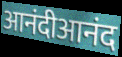
आनंदीआनंद